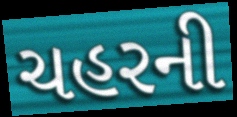
ચહરની